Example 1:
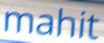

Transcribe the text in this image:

mahit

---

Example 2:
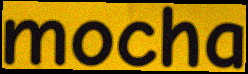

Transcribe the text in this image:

mocha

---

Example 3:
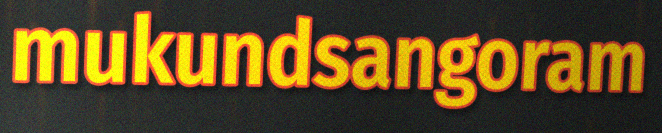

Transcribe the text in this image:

mukundsangoram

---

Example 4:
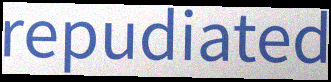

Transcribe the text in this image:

repudiated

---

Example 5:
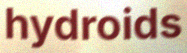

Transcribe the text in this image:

hydroids